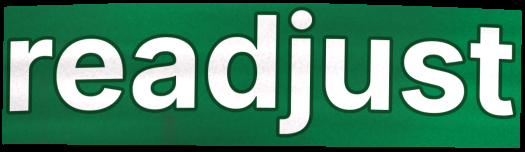
readjust